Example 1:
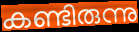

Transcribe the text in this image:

കണ്ടിരുന്നു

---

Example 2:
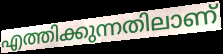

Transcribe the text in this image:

എത്തിക്കുന്നതിലാണ്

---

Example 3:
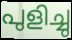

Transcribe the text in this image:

പുളിച്ചു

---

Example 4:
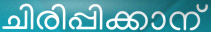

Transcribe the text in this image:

ചിരിപ്പിക്കാന്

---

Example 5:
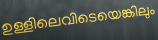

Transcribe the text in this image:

ഉള്ളിലെവിടെയെങ്കിലും